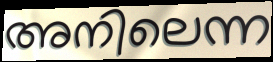
അനിലെന്ന